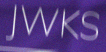
JWKS